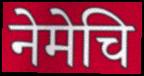
नेमेचि